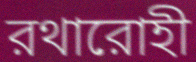
রথারোহী